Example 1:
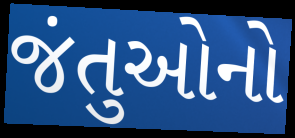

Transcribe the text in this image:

જંતુઓનો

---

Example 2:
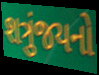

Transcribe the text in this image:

શત્રુંજયનો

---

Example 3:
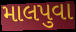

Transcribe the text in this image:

માલપુવા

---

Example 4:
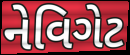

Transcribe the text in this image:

નેવિગેટ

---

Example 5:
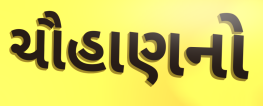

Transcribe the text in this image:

ચૌહાણનો